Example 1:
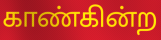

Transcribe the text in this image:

காண்கின்ற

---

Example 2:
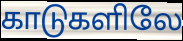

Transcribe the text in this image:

காடுகளிலே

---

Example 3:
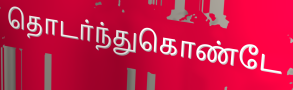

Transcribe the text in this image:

தொடர்ந்துகொண்டே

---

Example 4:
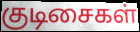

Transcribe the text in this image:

குடிசைகள்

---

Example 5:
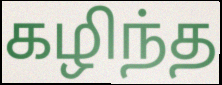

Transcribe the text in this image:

கழிந்த